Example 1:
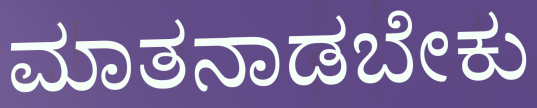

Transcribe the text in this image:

ಮಾತನಾಡಬೇಕು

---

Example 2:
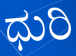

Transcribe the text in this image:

ಧುರಿ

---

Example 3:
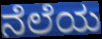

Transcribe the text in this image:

ನೆಲೆಯ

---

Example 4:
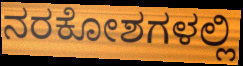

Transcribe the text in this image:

ನರಕೋಶಗಳಲ್ಲಿ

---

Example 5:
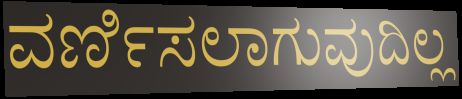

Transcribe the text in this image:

ವರ್ಣಿಸಲಾಗುವುದಿಲ್ಲ